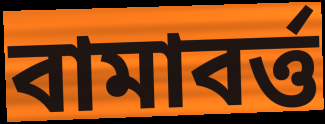
বামাবর্ত্ত